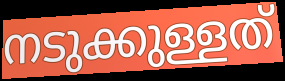
നടുക്കുള്ളത്